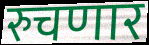
रुचणार